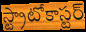
స్ట్రాటోకాస్టర్